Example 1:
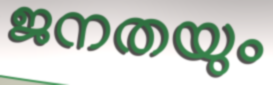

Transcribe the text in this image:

ജനതയും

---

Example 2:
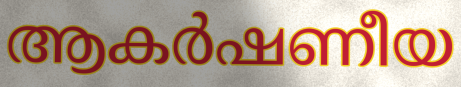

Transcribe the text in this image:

ആകർഷണീയ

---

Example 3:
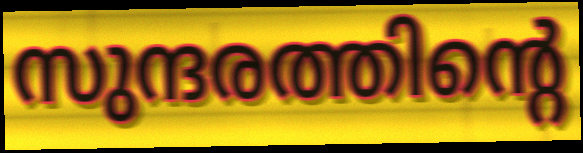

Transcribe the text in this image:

സുന്ദരത്തിന്റെ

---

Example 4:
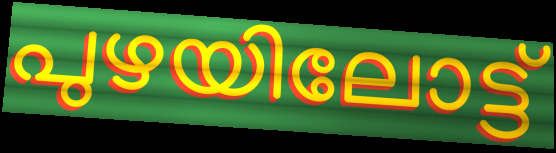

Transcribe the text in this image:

പുഴയിലോട്ട്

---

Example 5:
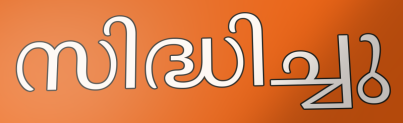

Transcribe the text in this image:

സിദ്ധിച്ചു